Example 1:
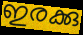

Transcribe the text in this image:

ഇരക്കു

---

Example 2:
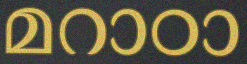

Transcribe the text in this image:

മറാഠാ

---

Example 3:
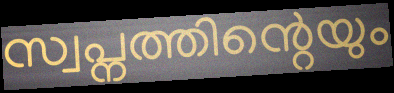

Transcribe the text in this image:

സ്വപ്നത്തിന്റെയും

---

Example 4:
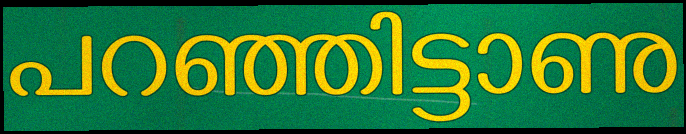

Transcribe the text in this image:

പറഞ്ഞിട്ടാണു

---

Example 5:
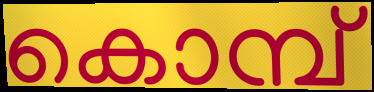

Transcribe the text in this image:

കൊമ്പ്